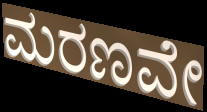
ಮರಣವೇ